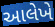
આલેખે